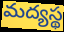
మద్యస్థ